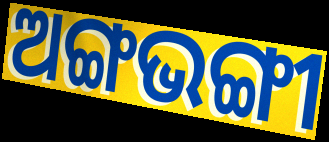
ଅଙ୍ଗଭଙ୍ଗୀ